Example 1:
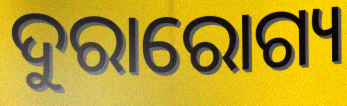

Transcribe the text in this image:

ଦୁରାରୋଗ୍ୟ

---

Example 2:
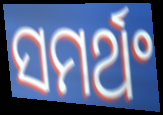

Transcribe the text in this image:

ସମର୍ଥଂ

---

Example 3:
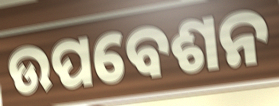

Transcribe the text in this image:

ଉପବେଶନ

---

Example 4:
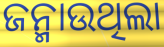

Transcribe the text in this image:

ଜନ୍ମାଉଥିଲା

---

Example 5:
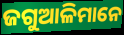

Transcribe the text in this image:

ଜଗୁଆଳିମାନେ